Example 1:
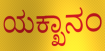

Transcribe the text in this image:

ಯಕ್ಖಾನಂ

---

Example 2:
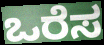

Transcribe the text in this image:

ಒರೆಸ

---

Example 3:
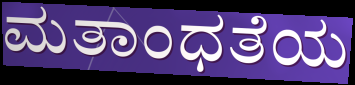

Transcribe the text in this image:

ಮತಾಂಧತೆಯ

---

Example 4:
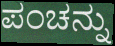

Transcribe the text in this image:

ಪಂಚನ್ನು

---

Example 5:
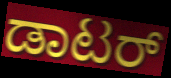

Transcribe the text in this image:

ಡಾಟರ್